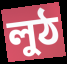
লুঠ